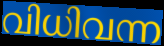
വിധിവന്ന